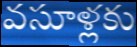
వసూళ్లకు